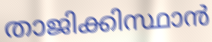
താജിക്കിസ്ഥാൻ